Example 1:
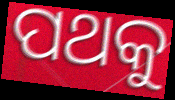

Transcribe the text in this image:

ପଥକୁ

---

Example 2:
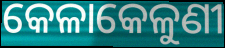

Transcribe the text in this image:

କେଳାକେଳୁଣୀ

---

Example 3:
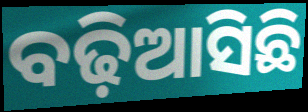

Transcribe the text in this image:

ବଢ଼ିଆସିଛି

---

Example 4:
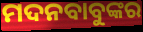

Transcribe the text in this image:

ମଦନବାବୁଙ୍କର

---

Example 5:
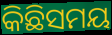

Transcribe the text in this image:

କିଛିସମୟ